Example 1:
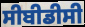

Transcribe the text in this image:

ਸੀਬੀਡੀਸੀ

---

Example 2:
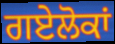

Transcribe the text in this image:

ਗਏਲੋਕਾਂ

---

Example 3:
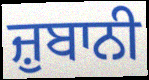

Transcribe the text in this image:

ਜ਼ੁਬਾਨੀ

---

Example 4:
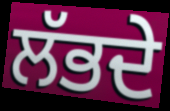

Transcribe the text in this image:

ਲੱਭਦੇ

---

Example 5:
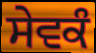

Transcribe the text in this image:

ਸੇਵਕੰ